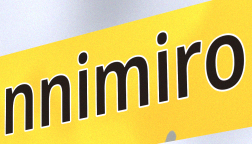
nnimiro